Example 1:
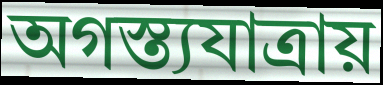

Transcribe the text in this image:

অগস্ত্যযাত্রায়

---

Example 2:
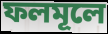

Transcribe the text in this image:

ফলমূলে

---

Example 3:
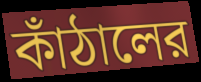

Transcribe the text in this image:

কাঁঠালের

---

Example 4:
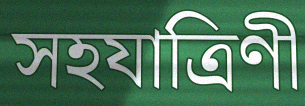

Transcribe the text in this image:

সহযাত্রিণী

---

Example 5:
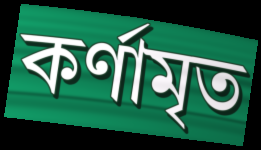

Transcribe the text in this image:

কর্ণামৃত